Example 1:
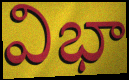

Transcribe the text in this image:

విభా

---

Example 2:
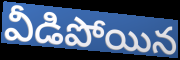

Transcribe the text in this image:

వీడిపోయిన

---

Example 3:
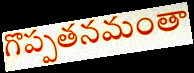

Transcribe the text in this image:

గొప్పతనమంతా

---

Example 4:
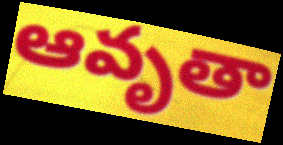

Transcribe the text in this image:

ఆవృతా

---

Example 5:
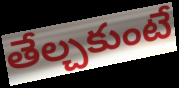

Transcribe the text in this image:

తేల్చకుంటే